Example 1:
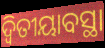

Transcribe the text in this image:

ଦ୍ବିତୀୟାବସ୍ଥା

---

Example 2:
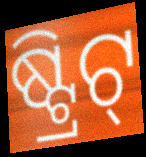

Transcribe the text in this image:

ଷ୍ଟ୍ରିଟ୍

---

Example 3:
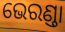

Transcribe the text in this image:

ଭେରଣ୍ଡା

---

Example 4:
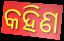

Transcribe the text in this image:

କହିଣ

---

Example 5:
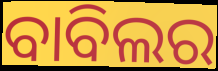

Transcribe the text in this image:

ବାବିଲର